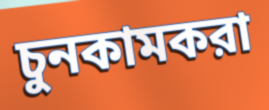
চুনকামকরা